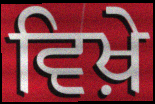
ਵਿਖ਼ੇ